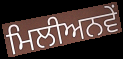
ਮਿਲੀਅਨਵੇਂ